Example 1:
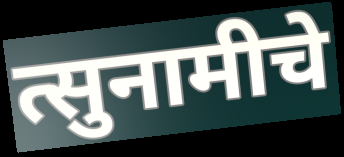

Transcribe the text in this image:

त्सुनामीचे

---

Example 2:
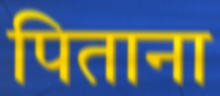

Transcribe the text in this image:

पिताना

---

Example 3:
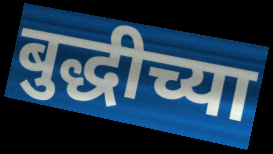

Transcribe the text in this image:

बुद्धीच्या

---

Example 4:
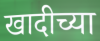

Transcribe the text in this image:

खादीच्या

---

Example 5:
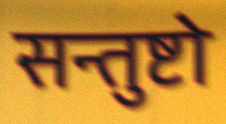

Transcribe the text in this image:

सन्तुष्टो